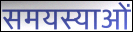
समयस्याओं